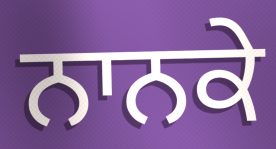
ਨਾਨਕੇ